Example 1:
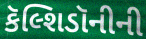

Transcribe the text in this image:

કૅલ્શિડૉનીની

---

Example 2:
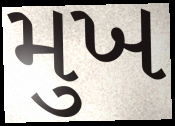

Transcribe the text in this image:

મુખ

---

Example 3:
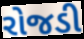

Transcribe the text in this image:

રોજડી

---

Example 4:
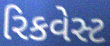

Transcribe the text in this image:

રિકવેસ્ટ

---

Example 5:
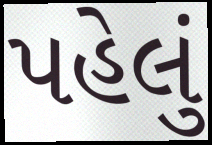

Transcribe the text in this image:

પહેલું